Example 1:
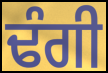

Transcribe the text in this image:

ਢੰਗੀ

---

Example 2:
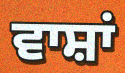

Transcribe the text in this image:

ਵਾਸ਼ਾਂ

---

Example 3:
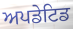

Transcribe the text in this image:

ਅਪਡੇਟਿਡ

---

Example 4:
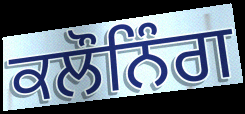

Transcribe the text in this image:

ਕਲੌਨਿੰਗ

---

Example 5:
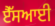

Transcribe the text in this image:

ਏੈੱਸਆਈ